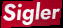
Sigler